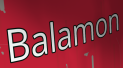
Balamon